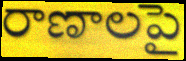
రాణాలపై